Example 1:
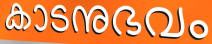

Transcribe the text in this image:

കാടനുഭവം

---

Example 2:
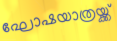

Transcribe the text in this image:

ഘോഷയാത്രയ്ക്ക്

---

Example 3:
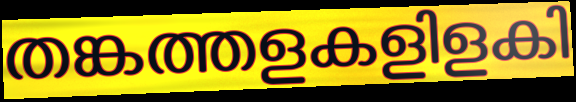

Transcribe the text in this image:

തങ്കത്തളകളിളകി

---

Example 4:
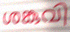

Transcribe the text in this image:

ശങ്കുവി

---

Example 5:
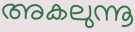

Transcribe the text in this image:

അകലുന്നൂ